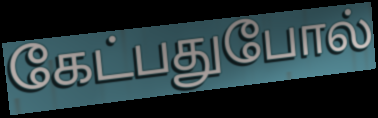
கேட்பதுபோல்